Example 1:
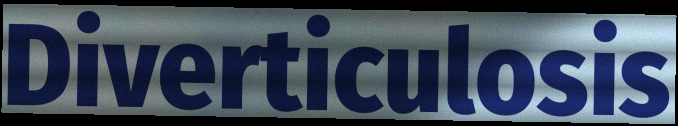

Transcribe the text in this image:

Diverticulosis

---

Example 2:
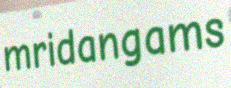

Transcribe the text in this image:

mridangams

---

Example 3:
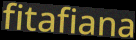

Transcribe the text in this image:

fitafiana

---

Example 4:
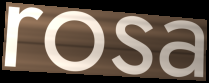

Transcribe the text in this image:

rosa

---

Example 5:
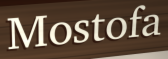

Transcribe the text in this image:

Mostofa